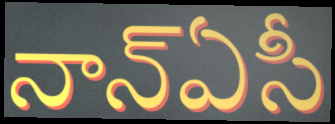
నాన్ఏసీ